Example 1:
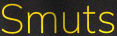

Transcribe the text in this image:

Smuts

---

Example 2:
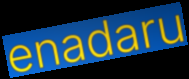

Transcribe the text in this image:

enadaru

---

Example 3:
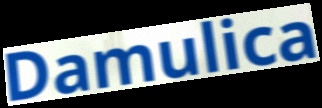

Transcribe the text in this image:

Damulica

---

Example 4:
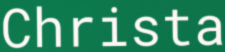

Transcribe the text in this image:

Christa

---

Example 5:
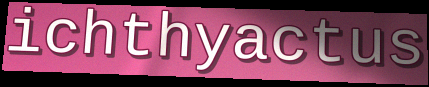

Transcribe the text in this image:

ichthyactus